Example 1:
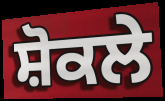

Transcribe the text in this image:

ਸ਼ੋਕਲੇ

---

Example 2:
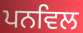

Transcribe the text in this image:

ਪਨਵਿਲ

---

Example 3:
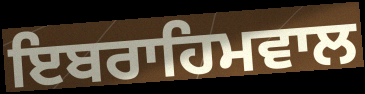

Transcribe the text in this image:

ਇਬਰਾਹਿਮਵਾਲ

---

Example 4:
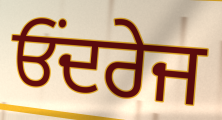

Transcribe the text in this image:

ਓਂਦਰੇਜ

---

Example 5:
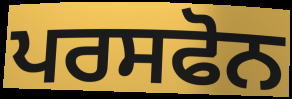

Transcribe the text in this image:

ਪਰਸਫੋਨ